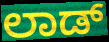
ಲಾಡ್